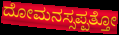
ದೋಮನಸ್ಸಪ್ಪತ್ತೋ